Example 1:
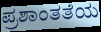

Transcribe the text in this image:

ಪ್ರಶಾಂತತೆಯ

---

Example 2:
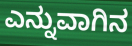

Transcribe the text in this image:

ಎನ್ನುವಾಗಿನ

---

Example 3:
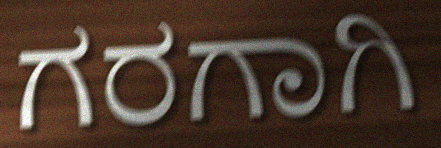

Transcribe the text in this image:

ಗರಗಾಗಿ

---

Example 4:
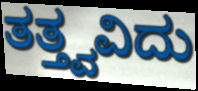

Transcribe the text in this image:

ತತ್ತ್ವವಿದು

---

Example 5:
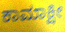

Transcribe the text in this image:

ಕಾಮಾಕ್ಷೀ